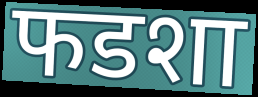
फडशा